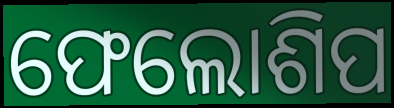
ଫେଲୋଶିପ